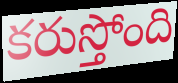
కరుస్తోంది